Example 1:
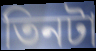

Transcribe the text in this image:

তিনটা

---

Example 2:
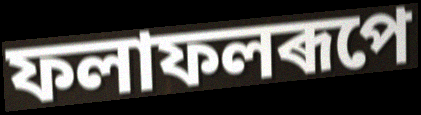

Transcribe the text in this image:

ফলাফলৰূপে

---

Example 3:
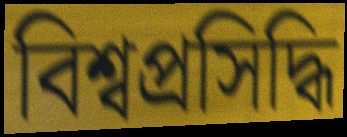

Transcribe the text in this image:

বিশ্বপ্ৰসিদ্ধি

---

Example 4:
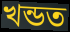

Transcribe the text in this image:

খন্ডত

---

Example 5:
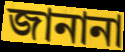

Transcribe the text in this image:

জানানা